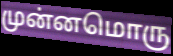
முன்னமொரு